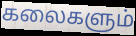
கலைகளும்